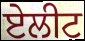
ਏਲੀਟ